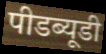
पीडब्यूडी